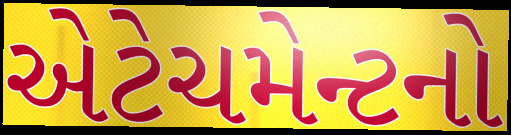
એટેચમેન્ટનો